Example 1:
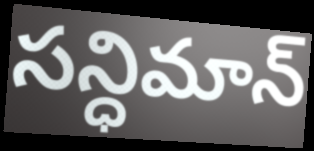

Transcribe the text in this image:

సన్ధిమాన్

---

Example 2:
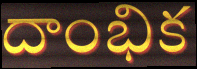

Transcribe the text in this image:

దాంభిక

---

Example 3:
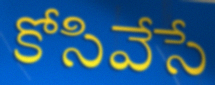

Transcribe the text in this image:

కోసివేసే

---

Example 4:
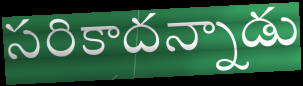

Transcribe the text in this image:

సరికాదన్నాడు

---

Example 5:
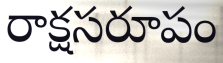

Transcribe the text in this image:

రాక్షసరూపం